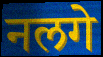
नलगे